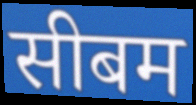
सीबम